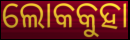
ଲୋକକୁହା